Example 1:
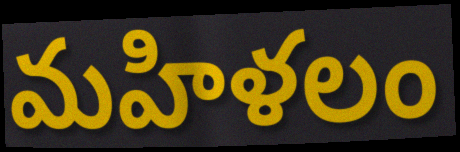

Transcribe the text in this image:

మహిళలం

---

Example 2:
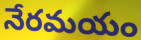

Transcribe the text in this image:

నేరమయం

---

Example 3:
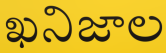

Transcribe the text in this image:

ఖనిజాల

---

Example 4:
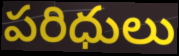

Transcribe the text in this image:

పరిధులు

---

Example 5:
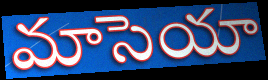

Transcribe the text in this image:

మాసెయా